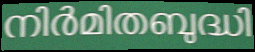
നിർമിതബുദ്ധി